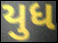
યુધ